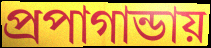
প্রপাগান্ডায়